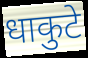
धाकुटे